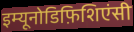
इम्यूनोडिफ़िशिएंसी